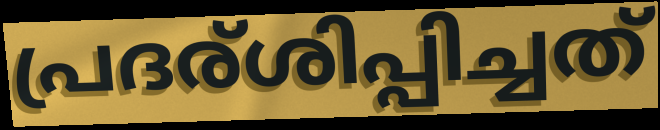
പ്രദര്ശിപ്പിച്ചത്